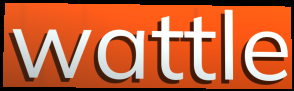
wattle